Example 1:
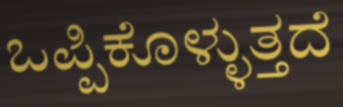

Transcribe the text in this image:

ಒಪ್ಪಿಕೊಳ್ಳುತ್ತದೆ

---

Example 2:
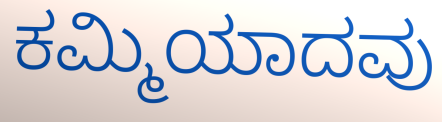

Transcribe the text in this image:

ಕಮ್ಮಿಯಾದವು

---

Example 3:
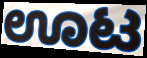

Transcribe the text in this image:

ಊಟ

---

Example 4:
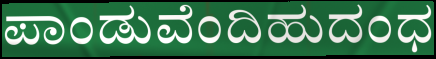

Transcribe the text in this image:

ಪಾಂಡುವೆಂದಿಹುದಂಧ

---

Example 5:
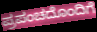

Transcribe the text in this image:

ಪ್ರಪಂಚದೊಂದಿಗೆ